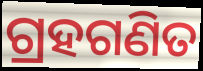
ଗ୍ରହଗଣିତ